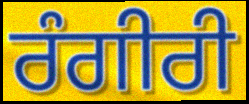
ਰੰਗੀਰੀ